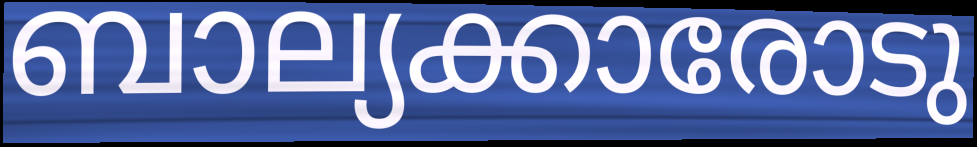
ബാല്യക്കാരോടു